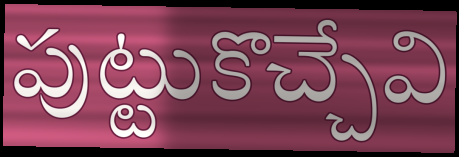
పుట్టుకొచ్చేవి